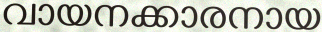
വായനക്കാരനായ